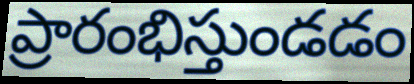
ప్రారంభిస్తుండడం